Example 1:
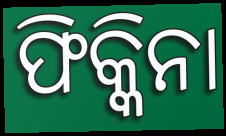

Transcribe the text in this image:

ଫିକ୍କିନା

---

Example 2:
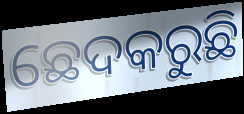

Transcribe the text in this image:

ଛେଦକରୁଛି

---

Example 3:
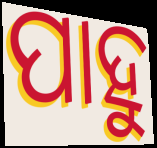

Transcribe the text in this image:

ପାହୁ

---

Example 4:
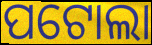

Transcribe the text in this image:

ପଟୋଲା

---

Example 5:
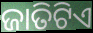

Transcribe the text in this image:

ଜାତିଟିଏ